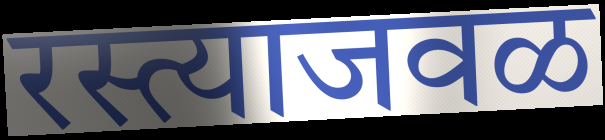
रस्त्याजवळ